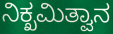
ನಿಕ್ಖಮಿತ್ವಾನ